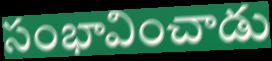
సంభావించాడు